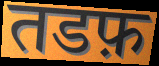
तडफ़